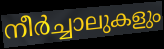
നീർച്ചാലുകളും